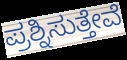
ಪ್ರಶ್ನಿಸುತ್ತೇವೆ